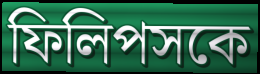
ফিলিপসকে